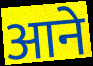
आने